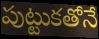
పుట్టుకతోనే